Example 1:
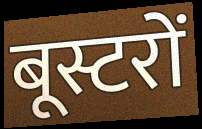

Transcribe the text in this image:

बूस्टरों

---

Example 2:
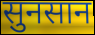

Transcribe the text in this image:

सुनसान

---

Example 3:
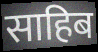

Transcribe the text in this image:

साहिब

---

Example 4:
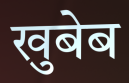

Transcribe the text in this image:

खुबेब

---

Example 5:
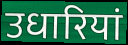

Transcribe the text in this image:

उधारियां